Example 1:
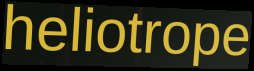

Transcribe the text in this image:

heliotrope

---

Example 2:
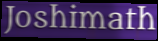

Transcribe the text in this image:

Joshimath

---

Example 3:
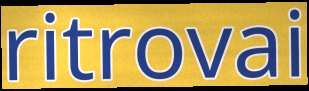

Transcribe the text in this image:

ritrovai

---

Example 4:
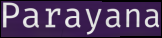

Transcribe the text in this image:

Parayana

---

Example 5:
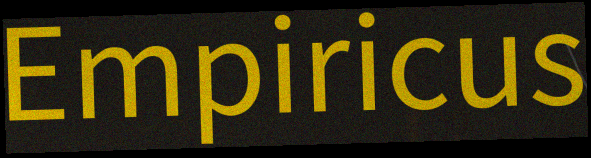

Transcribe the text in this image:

Empiricus